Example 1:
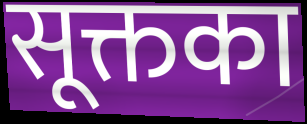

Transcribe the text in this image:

सूक्तका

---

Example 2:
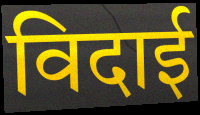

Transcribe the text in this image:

विदाई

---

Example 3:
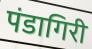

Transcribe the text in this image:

पंडागिरी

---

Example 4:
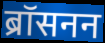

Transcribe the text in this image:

ब्रॉसनन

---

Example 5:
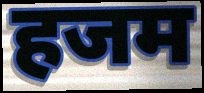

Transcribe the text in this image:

हजम